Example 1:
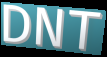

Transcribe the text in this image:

DNT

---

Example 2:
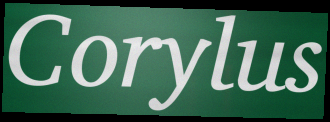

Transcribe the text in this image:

Corylus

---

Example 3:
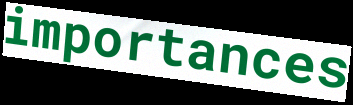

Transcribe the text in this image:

importances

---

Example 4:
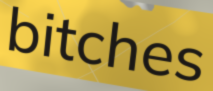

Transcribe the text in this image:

bitches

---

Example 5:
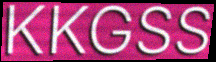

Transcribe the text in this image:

KKGSS